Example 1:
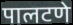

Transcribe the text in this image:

पालटणे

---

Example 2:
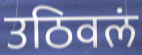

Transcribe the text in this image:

उठिवलं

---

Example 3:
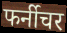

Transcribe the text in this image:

फर्नीचर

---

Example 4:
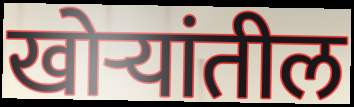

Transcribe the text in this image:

खोऱ्यांतील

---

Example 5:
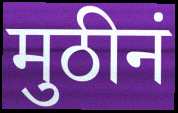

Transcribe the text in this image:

मुठीनं